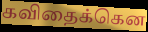
கவிதைக்கென